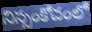
నిస్సంకోచంలో